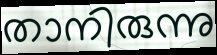
താനിരുന്നു